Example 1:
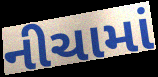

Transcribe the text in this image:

નીચામાં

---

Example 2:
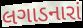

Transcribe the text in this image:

લગાડનારાં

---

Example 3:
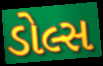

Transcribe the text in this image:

ડોલ્સ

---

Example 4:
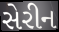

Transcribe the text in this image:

સેરીન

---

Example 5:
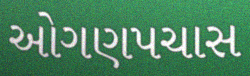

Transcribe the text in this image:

ઓગણપચાસ